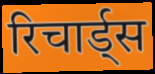
रिचार्ड्स